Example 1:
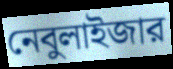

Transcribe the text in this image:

নেবুলাইজার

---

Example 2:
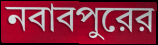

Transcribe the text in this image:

নবাবপুরের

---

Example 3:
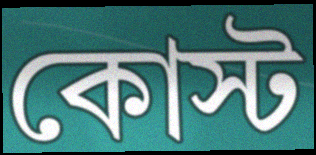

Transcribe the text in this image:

কোস্ট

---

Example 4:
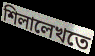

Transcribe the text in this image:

শিলালেখতে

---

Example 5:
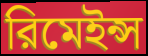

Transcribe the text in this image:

রিমেইন্স